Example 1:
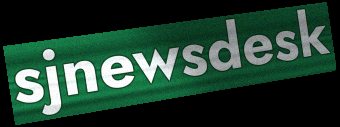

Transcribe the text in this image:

sjnewsdesk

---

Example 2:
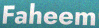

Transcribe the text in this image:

Faheem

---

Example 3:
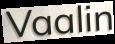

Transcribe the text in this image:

Vaalin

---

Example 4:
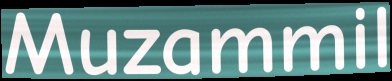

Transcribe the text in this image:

Muzammil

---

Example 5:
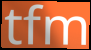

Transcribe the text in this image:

tfm